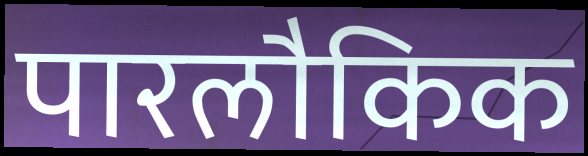
पारलौकिक